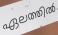
ഏലത്തിൽ